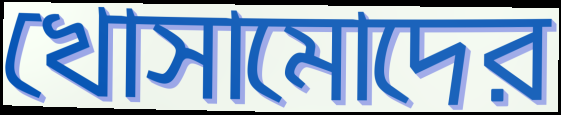
খোসামোদের